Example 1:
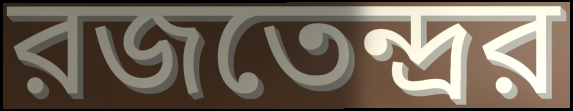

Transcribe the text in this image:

রজতেন্দ্রর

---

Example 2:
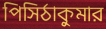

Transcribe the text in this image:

পিসিঠাকুমার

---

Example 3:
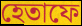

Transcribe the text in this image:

হেতাফে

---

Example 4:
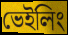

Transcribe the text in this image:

ভেইলিং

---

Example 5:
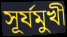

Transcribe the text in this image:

সূর্যমুখী